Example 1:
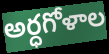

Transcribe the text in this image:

అర్ధగోళాల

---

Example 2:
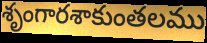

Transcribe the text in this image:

శృంగారశాకుంతలము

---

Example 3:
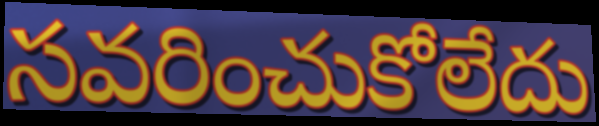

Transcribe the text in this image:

సవరించుకోలేదు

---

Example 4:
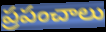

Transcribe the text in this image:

ప్రపంచాలు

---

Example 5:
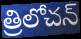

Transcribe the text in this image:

త్రిలోచన్